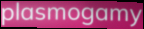
plasmogamy